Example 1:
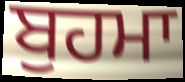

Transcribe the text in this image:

ਬੁਹਮਾ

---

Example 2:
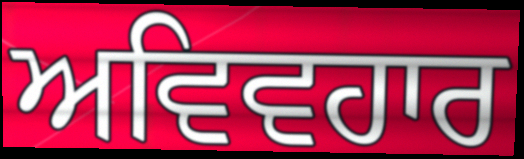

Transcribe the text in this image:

ਅਵਿਵਹਾਰ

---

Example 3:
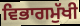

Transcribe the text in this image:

ਵਿਭਾਗਮੁੱਖੀ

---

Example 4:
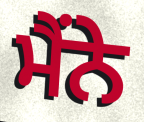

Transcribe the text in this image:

ਮੈਂਨੇ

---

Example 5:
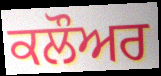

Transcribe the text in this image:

ਕਲੌਅਰ